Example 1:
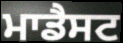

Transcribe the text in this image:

ਮਾਡੈਸਟ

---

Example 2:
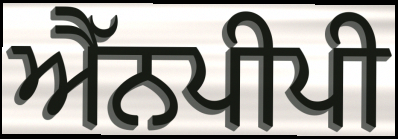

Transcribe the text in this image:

ਐੱਨਪੀਪੀ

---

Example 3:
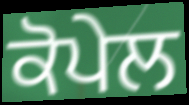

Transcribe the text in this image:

ਕੋਪੇਲ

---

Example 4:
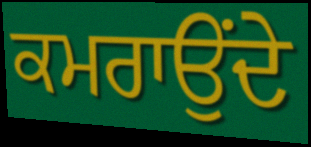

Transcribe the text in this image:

ਕਮਰਾਉਂਦੇ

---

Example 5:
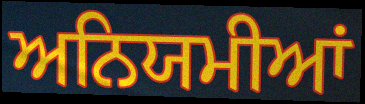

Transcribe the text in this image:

ਅਨਿਯਮੀਆਂ